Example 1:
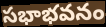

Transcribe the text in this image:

సభాభవనం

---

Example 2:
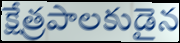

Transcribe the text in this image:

క్షేత్రపాలకుడైన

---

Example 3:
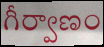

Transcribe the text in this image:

గీర్వాణం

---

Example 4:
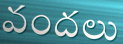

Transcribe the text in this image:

వందలు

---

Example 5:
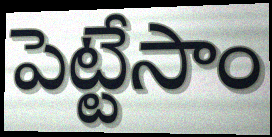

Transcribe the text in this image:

పెట్టేసాం